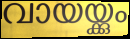
വായയ്ക്കും